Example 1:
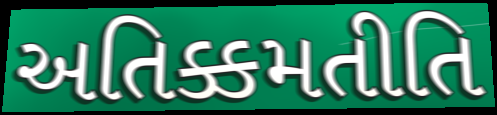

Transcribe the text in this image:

અતિક્કમતીતિ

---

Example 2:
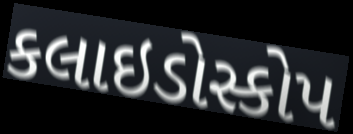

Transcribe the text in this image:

કલાઇડોસ્કોપ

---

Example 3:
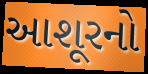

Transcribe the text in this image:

આશૂરનો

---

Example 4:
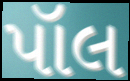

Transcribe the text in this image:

પૉલ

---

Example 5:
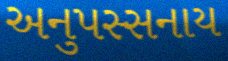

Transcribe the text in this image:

અનુપસ્સનાય